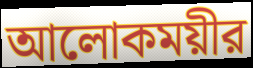
আলোকময়ীর